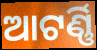
ଆଟର୍ଣ୍ଣି